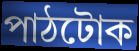
পাঠটোক